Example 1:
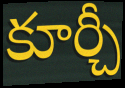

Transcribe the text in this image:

కూర్చీ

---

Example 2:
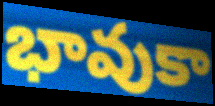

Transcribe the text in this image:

భావుకా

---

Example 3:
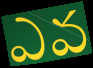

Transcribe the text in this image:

ఎవ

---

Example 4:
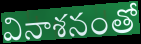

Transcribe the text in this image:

వినాశనంతో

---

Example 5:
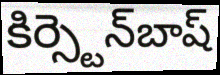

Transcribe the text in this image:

కిర్స్టెన్‌బాష్